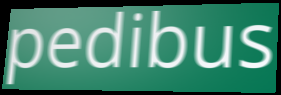
pedibus